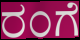
ರಂಗೆ